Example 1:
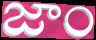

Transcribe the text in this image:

జాం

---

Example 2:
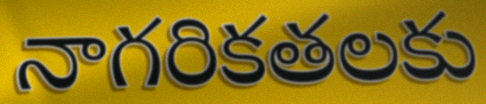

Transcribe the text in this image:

నాగరికతలకు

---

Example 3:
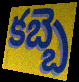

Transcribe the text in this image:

కబ్బె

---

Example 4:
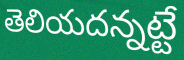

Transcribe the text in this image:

తెలియదన్నట్టే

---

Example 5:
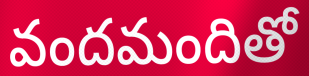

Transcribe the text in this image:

వందమందితో